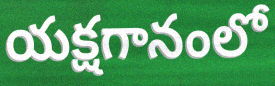
యక్షగానంలో